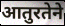
आतुरतेने